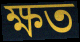
ক্ষত